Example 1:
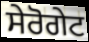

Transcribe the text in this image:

ਸੇਰੋਗੇਟ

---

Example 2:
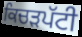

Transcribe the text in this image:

ਕਿਚੜਪੱਟੀ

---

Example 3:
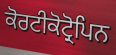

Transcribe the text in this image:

ਕੋਰਟੀਕੋਟ੍ਰੋਪਿਨ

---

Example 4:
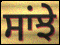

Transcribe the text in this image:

ਸਾਂਝੇ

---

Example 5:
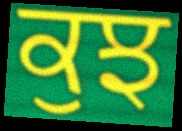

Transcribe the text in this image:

ਕੁਝ